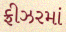
ફ્રીઝરમાં